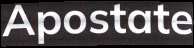
Apostate